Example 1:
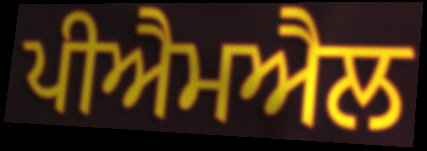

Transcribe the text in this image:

ਪੀਐਮਐਲ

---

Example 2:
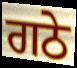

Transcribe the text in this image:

ਗਠੇ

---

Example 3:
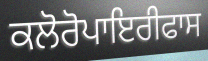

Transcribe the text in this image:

ਕਲੋਰੋਪਾਇਰੀਫਾਸ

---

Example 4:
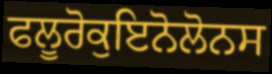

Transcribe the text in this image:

ਫਲੂਰੋਕੁਇਨੋਲੋਨਸ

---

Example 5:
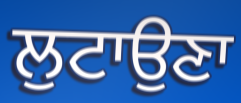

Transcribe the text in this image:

ਲੁਟਾਉਣਾ